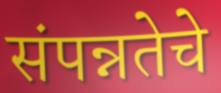
संपन्नतेचे